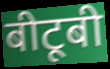
बीटूबी